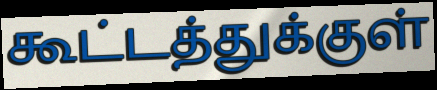
கூட்டத்துக்குள்